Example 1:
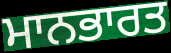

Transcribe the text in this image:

ਮਾਨਭਾਰਤ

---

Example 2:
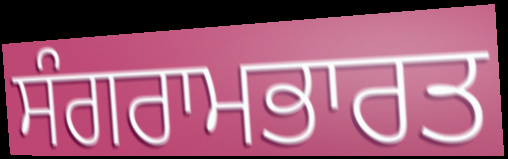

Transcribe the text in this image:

ਸੰਗਰਾਮਭਾਰਤ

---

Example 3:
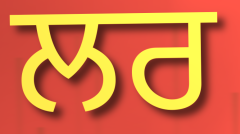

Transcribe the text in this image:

ਲਰ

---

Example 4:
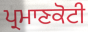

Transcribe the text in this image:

ਪ੍ਰਮਾਣਕੋਟੀ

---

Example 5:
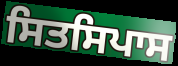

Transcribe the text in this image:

ਸਿਤਸਿਪਾਸ